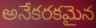
అనేకరకమైన